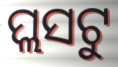
ପ୍ଲସଟୁ